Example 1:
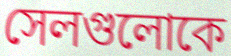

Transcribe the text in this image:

সেলগুলোকে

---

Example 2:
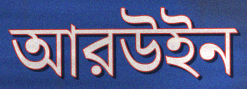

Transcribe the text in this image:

আরউইন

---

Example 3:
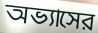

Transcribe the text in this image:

অভ্যাসের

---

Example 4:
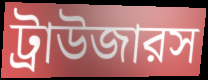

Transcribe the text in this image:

ট্রাউজারস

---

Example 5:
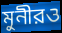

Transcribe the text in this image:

মুনীরও